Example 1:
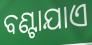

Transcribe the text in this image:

ବଣ୍ଟାଯାଏ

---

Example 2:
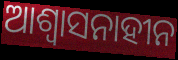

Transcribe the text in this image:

ଆଶ୍ୱାସନାହୀନ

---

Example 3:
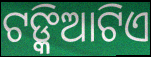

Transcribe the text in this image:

ଟଙ୍କିଆଟିଏ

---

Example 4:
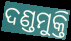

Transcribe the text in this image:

ଦଣ୍ଡମୁକ୍ତି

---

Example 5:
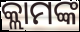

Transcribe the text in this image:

କ୍ଲାମଙ୍କ